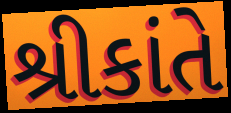
શ્રીકાંતે